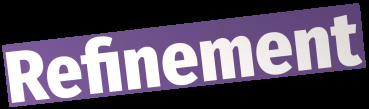
Refinement